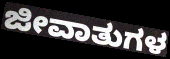
ಜೀವಾತುಗಳ